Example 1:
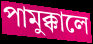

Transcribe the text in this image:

পামুক্কালে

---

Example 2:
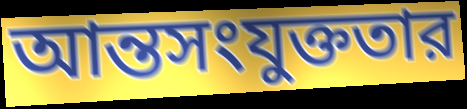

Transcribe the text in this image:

আন্তসংযুক্ততার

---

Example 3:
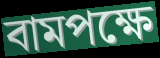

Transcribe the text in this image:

বামপক্ষে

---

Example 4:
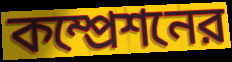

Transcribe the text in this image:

কম্প্রেশনের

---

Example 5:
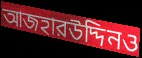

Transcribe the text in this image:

আজহারউদ্দিনও